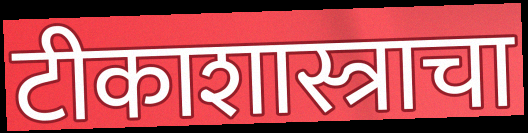
टीकाशास्त्राचा